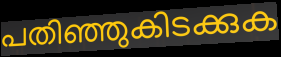
പതിഞ്ഞുകിടക്കുക